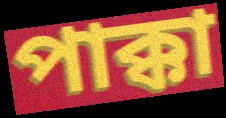
পাক্কা